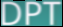
DPT